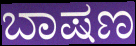
ಬಾಷಣ